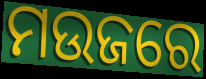
ମଉଜରେ